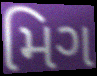
મિગ